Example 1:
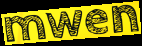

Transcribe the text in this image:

mwen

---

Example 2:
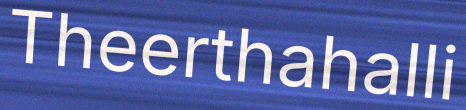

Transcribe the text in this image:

Theerthahalli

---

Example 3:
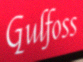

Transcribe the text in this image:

Gulfoss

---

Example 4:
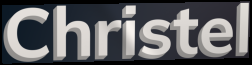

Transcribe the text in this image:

Christel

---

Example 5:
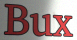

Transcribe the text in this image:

Bux